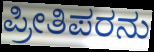
ಪ್ರೀತಿಪರನು